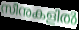
സീനുകളിൽ